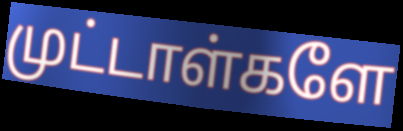
முட்டாள்களே